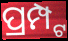
ପ୍ରମ୍ପ୍ଟ